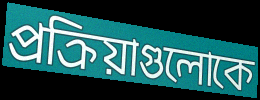
প্রক্রিয়াগুলোকে